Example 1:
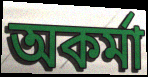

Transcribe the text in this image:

অকর্মা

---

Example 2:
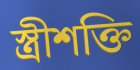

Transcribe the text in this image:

স্ত্রীশক্তি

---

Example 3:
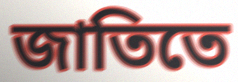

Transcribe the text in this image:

জাতিতে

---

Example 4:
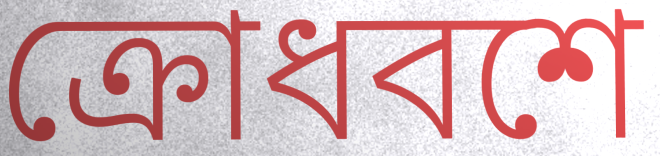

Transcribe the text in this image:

ক্রোধবশে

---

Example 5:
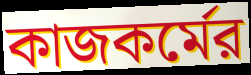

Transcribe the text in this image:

কাজকর্মের